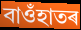
বাওঁহাতৰ